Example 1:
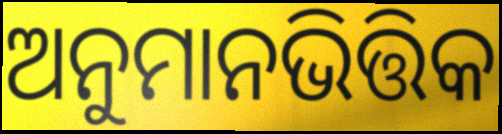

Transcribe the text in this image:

ଅନୁମାନଭିତ୍ତିକ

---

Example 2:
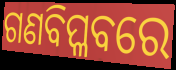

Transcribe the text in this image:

ଗଣବିପ୍ଳବରେ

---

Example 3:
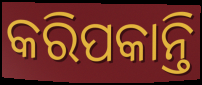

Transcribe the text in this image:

କରିପକାନ୍ତି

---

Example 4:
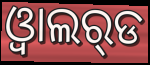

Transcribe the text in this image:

ଓ୍ବାଲର୍‌ଡ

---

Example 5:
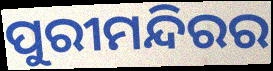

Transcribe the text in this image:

ପୁରୀମନ୍ଦିରର